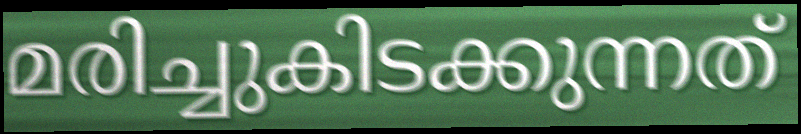
മരിച്ചുകിടക്കുന്നത്